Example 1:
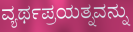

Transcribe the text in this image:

ವ್ಯರ್ಥಪ್ರಯತ್ನವನ್ನು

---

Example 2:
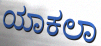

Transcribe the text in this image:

ಯಾಕಲಾ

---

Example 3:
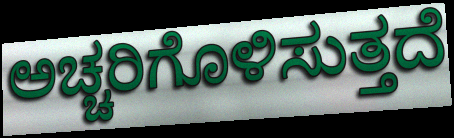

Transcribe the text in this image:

ಅಚ್ಚರಿಗೊಳಿಸುತ್ತದೆ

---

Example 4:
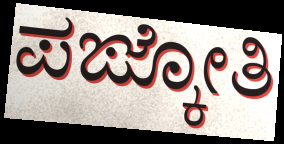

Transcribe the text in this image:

ಪಙ್ಕೋತಿ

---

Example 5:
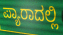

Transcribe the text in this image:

ಪ್ಯಾರಾದಲ್ಲಿ